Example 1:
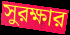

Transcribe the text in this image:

সুরক্ষার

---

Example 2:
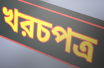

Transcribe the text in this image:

খরচপত্র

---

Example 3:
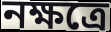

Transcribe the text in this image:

নক্ষত্রে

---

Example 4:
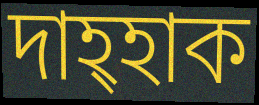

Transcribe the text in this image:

দাহ্হাক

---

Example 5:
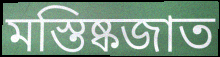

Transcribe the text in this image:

মস্তিষ্কজাত